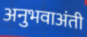
अनुभवाअंती